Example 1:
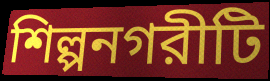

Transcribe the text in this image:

শিল্পনগরীটি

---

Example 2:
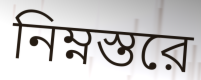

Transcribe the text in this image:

নিম্নস্তরে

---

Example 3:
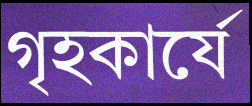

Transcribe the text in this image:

গৃহকার্যে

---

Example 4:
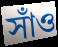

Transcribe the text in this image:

সাঁও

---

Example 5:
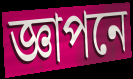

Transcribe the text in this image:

জ্ঞাপনে